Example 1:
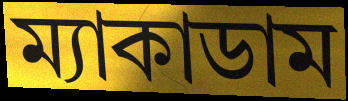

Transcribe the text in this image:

ম্যাকাডাম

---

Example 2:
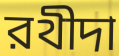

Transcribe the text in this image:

রথীদা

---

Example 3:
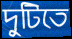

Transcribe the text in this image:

দুটিতে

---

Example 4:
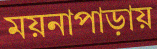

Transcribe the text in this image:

ময়নাপাড়ায়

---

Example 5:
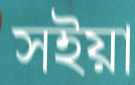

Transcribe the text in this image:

সইয়া